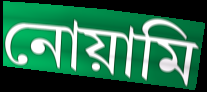
নোয়ামি